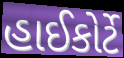
હાઈકોર્ટે